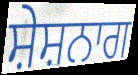
ਸ਼ੇਸ਼ਨਾਗ